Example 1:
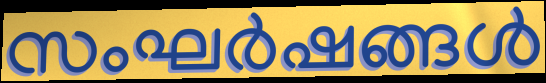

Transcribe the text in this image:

സംഘർഷങ്ങൾ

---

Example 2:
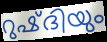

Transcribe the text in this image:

റുഷ്ദിയും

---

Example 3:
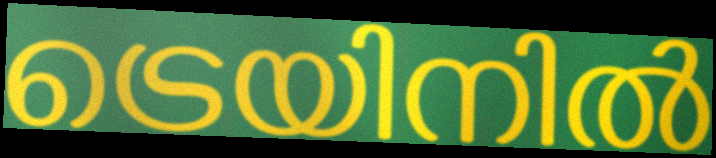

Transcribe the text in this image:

ട്രെയിനിൽ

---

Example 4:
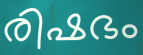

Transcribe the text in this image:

രിഷഭം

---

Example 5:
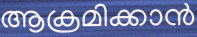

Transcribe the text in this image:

ആക്രമിക്കാൻ